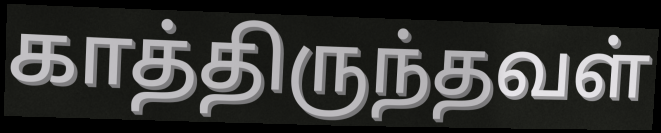
காத்திருந்தவள்